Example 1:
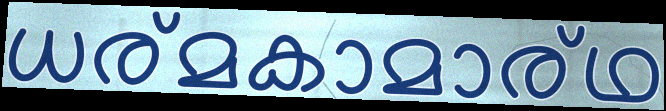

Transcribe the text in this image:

ധര്മകാമാര്ഥ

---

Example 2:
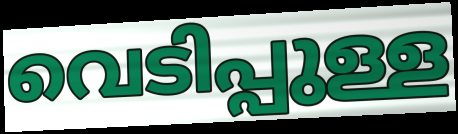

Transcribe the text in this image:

വെടിപ്പുള്ള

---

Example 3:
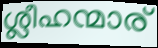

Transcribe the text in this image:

ശ്ലീഹന്മാര്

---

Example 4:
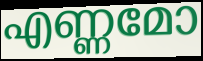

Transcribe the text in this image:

എണ്ണമോ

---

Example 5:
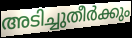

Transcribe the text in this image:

അടിച്ചുതീർക്കും